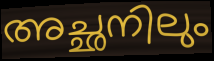
അച്ഛനിലും